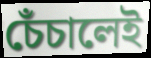
চেঁচালেই